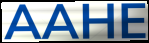
AAHE